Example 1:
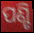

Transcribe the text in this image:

ପଣ୍ଡି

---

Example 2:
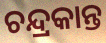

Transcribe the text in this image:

ଚନ୍ଦ୍ରକାନ୍ତ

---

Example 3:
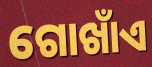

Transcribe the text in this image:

ଗୋଖାଁଏ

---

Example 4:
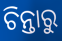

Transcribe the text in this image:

ଚିନ୍ତାରୁ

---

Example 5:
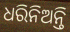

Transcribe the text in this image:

ଧରିନିଅନ୍ତି